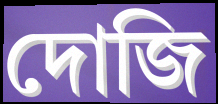
দোজি